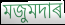
মজুমদাৰ